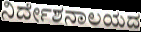
ನಿರ್ದೇಶನಾಲಯದ